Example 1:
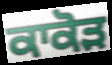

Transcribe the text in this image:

ਕਾਕੋੜ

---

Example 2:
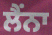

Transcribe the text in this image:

ਲੈਂਨਾ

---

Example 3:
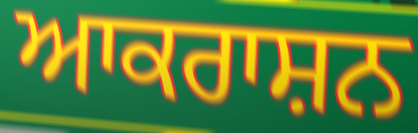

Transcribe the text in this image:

ਆਕਰਾਸ਼ਨ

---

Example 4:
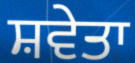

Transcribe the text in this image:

ਸ਼ਵੇਤਾ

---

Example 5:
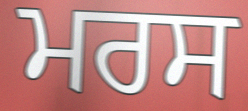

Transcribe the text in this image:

ਮਰਸ